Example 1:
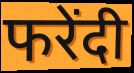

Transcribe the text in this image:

फरेंदी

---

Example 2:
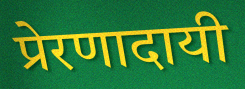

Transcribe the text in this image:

प्रेरणादायी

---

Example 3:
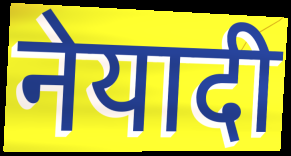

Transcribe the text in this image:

नेयादी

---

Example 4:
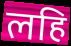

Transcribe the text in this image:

लहि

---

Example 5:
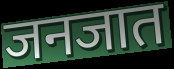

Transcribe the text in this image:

जनजात